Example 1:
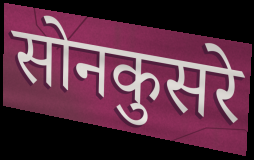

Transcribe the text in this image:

सोनकुसरे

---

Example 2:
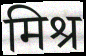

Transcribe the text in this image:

मिश्र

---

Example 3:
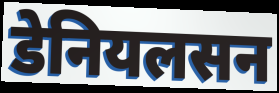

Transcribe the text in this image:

डेनियलसन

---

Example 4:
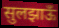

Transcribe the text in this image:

सुलझाऊँ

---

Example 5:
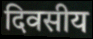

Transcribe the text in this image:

दिवसीय